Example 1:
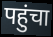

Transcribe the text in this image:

पहुंचा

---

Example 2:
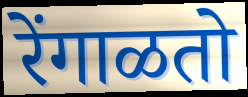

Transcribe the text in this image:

रेंगाळतो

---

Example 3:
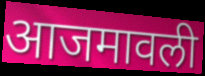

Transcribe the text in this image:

आजमावली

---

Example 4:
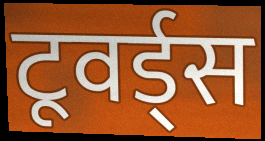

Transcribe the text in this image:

टूवर्ड्स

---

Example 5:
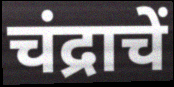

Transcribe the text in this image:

चंद्राचें